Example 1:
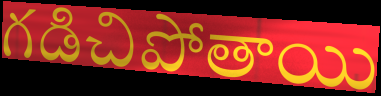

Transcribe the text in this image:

గడిచిపోతాయి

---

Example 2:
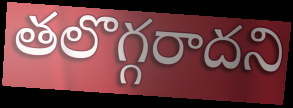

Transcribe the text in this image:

తలొగ్గరాదని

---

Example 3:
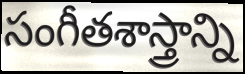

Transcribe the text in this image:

సంగీతశాస్త్రాన్ని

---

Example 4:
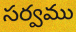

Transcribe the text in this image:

సర్వము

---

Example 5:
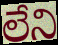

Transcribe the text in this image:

లేని